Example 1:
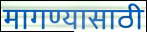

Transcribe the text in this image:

मागण्यासाठी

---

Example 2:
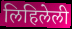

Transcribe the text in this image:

लिहिलेली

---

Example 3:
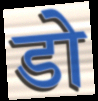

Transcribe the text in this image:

डो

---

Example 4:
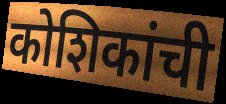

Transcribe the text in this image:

कोशिकांची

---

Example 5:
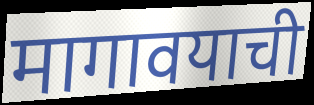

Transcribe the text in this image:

मागावयाची